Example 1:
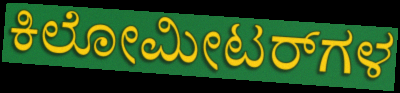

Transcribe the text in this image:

ಕಿಲೋಮೀಟರ್‌ಗಳ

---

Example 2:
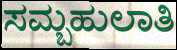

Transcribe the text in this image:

ಸಮ್ಬಹುಲಾತಿ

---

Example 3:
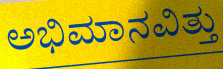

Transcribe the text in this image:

ಅಭಿಮಾನವಿತ್ತು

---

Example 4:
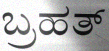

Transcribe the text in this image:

ಬ್ರಹತ್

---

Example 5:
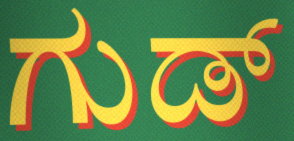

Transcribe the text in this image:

ಗುಡ್